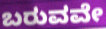
ಬರುವವೇ